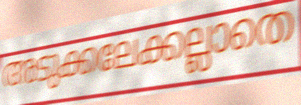
അടുക്കലേക്കല്ലാതെ